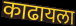
काढायला